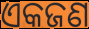
ଏକଜଣ